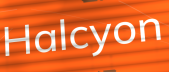
Halcyon